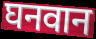
घनवान